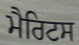
ਮੈਰਿਟਸ